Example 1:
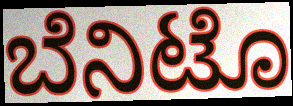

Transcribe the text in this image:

ಬೆನಿಟೊ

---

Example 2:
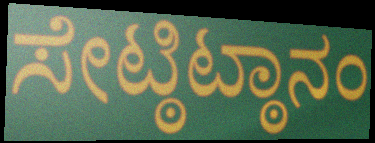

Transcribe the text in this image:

ಸೇಟ್ಠಿಟ್ಠಾನಂ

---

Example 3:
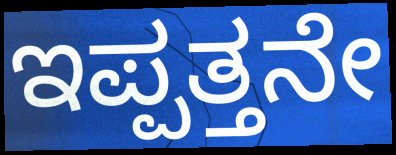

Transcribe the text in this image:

ಇಪ್ಪತ್ತನೇ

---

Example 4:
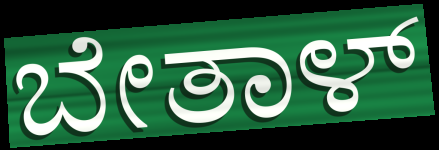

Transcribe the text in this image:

ಬೇತಾಳ್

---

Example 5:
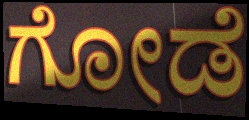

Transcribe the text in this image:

ಗೋಡೆ